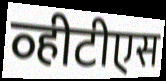
व्हीटीएस